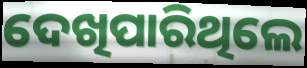
ଦେଖିପାରିଥିଲେ